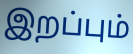
இறப்பும்